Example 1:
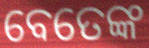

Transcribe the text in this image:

ବେତେଙ୍କ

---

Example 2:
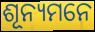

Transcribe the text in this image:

ଶୂନ୍ୟମନେ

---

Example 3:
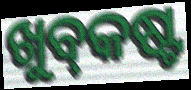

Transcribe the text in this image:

ଖୁବ୍‌କଷ୍ଟ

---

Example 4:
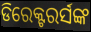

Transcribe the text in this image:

ଡିରେକ୍ଟରର୍ସଙ୍କ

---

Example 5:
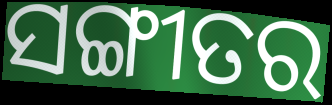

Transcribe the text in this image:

ସଙ୍ଗୀତର